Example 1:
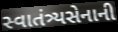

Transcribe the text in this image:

સ્વાતંત્ર્યસેનાની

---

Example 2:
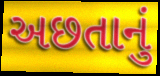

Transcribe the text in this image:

અછતાનું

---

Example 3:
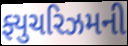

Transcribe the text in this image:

ફ્યુચરિઝમની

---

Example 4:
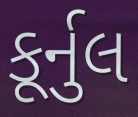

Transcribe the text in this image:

કૂર્નુલ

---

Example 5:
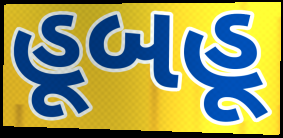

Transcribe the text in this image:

હૂબહૂ